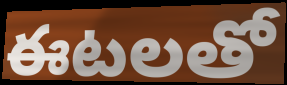
ఈటలతో